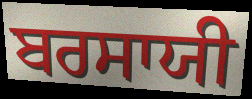
ਬਰਸਾਯੀ